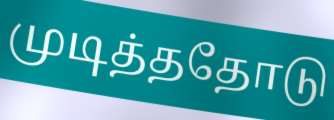
முடித்ததோடு